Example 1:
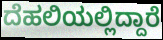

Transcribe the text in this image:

ದೆಹಲಿಯಲ್ಲಿದ್ದಾರೆ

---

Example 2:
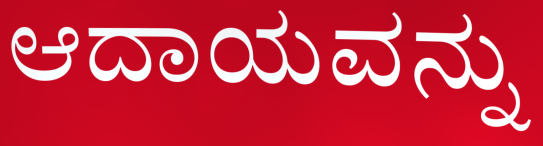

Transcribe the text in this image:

ಆದಾಯವನ್ನು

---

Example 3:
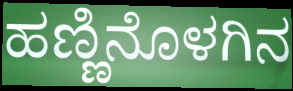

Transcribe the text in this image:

ಹಣ್ಣಿನೊಳಗಿನ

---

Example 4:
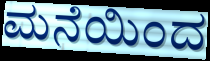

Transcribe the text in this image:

ಮನೆಯಿಂದ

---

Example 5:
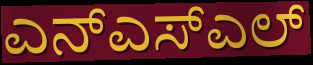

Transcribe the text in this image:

ಎನ್ಎಸ್ಎಲ್